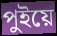
পুইয়ে